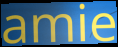
amie